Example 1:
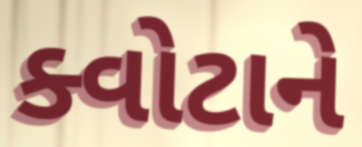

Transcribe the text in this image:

ક્વોટાને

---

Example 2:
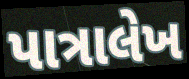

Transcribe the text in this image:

પાત્રાલેખ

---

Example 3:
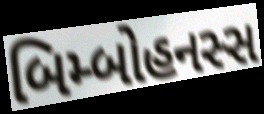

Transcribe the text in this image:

બિમ્બોહનસ્સ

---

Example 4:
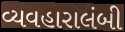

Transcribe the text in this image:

વ્યવહારાલંબી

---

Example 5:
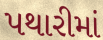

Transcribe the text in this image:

પથારીમાં